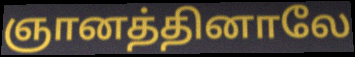
ஞானத்தினாலே